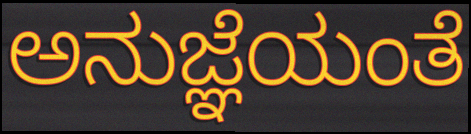
ಅನುಜ್ಞೆಯಂತೆ